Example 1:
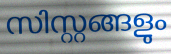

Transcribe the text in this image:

സിസ്റ്റങ്ങളും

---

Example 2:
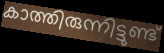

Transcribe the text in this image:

കാത്തിരുന്നിട്ടുണ്ട്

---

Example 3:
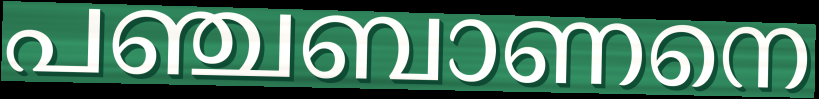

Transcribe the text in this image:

പഞ്ചബാണനെ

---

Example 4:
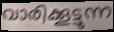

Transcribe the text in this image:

വാരിക്കൂട്ടുന്ന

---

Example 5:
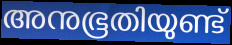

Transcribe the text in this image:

അനുഭൂതിയുണ്ട്